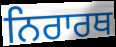
ਨਿਰਾਰਥ